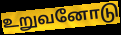
உறுவனோடு